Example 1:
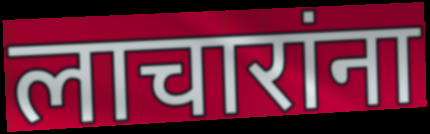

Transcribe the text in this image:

लाचारांना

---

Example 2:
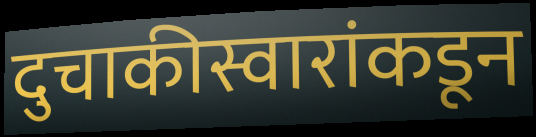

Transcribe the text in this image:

दुचाकीस्वारांकडून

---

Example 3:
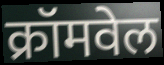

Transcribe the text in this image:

क्रॉमवेल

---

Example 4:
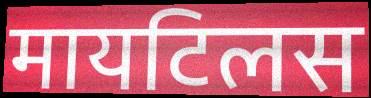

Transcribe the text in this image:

मायटिलस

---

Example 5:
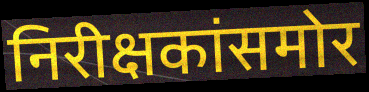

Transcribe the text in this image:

निरीक्षकांसमोर